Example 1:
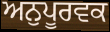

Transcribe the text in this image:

ਅਨੁਪੂਰਵਕ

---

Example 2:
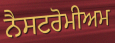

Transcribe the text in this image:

ਨੈਸਟਰੋਮੀਅਮ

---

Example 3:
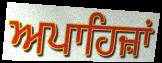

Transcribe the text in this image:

ਅਪਾਹਿਜ਼ਾਂ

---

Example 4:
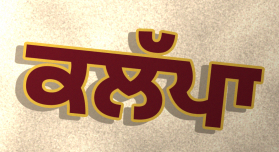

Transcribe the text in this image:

ਕਲੱਪਾ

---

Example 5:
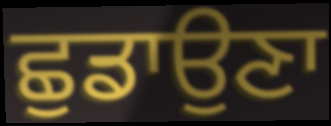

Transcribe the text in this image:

ਛੁਡਾਉਣਾ